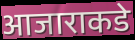
आजाराकडे